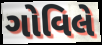
ગોવિલે